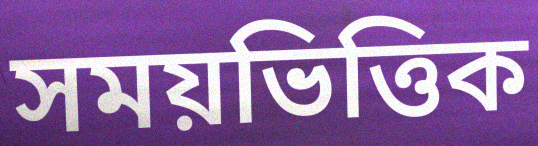
সময়ভিত্তিক